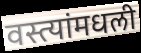
वस्त्यांमधली